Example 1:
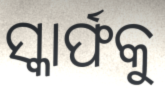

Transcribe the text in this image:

ସ୍କାର୍ଫକୁ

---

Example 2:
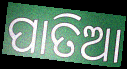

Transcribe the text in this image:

ପାତିଆ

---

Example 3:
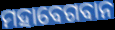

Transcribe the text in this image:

ମହାବେଗବାନ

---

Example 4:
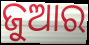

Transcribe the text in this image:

ଜୁଆର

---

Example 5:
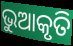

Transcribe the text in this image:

ଭୁଆକୃତି